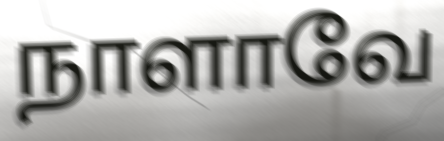
நாளாவே